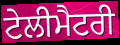
ਟੇਲੀਮੈਟਰੀ